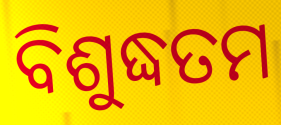
ବିଶୁଦ୍ଧତମ